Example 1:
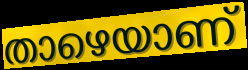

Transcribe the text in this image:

താഴെയാണ്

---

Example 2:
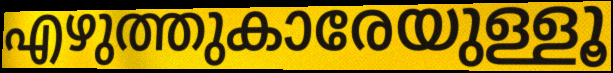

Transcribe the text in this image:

എഴുത്തുകാരേയുള്ളൂ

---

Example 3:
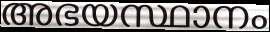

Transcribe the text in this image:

അഭയസ്ഥാനം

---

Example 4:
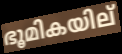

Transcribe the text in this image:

ഭൂമികയില്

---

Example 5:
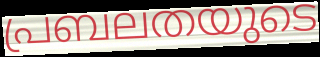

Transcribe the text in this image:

പ്രബലതയുടെ